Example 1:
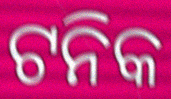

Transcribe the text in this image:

ଟନିକ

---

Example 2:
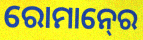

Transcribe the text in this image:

ରୋମାନ୍‍ରେ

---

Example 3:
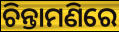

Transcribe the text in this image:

ଚିନ୍ତାମଣିରେ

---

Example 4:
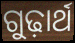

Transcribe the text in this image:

ଗୁଢ଼ାର୍ଥ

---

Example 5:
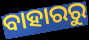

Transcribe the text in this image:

ବାହାରରୁ